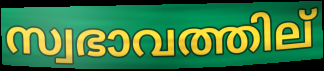
സ്വഭാവത്തില്